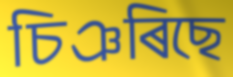
চিঞৰিছে